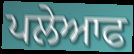
ਪਲੇਆਫ